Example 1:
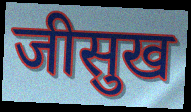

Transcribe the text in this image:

जीसुख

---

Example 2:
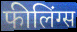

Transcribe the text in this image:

फीलिंग्स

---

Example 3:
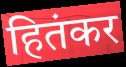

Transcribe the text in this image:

हितंकर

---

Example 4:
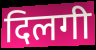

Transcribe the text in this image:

दिलगी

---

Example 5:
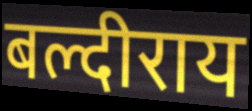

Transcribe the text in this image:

बल्दीराय